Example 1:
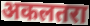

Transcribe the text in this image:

अकलतरा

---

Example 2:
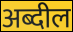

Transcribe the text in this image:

अब्दील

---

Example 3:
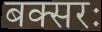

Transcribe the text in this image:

बक्सरः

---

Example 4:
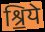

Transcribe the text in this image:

श्रि॒ये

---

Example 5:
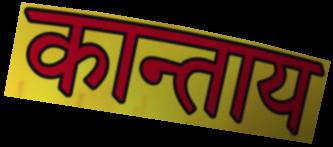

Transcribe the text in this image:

कान्ताय